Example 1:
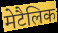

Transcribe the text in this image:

मेटैलिक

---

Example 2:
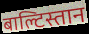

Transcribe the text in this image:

बाल्टिस्तान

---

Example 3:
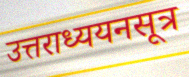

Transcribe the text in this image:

उत्तराध्ययनसूत्र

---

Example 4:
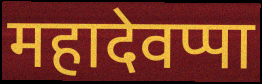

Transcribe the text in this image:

महादेवप्पा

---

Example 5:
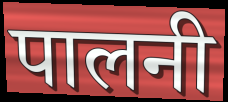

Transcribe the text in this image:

पालनी